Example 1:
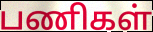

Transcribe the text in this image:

பணிகள்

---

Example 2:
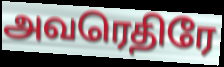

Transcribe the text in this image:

அவரெதிரே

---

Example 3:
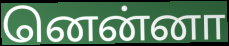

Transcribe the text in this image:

னென்னா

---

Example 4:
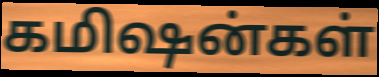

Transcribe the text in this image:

கமிஷன்கள்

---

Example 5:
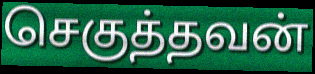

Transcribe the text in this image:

செகுத்தவன்